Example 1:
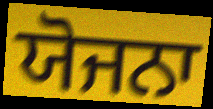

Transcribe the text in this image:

ਯੋਜਨਾ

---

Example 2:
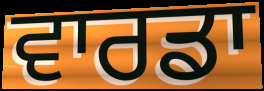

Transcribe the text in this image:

ਵਾਰਡਾ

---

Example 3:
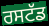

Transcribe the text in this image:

ਰਸਟੱਡ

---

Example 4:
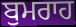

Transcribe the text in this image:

ਬੁਮਰਾਹ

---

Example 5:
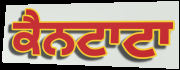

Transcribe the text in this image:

ਕੈਨਟਾਟਾ